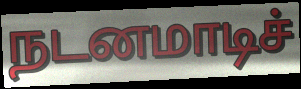
நடனமாடிச்